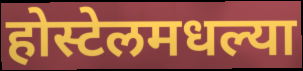
होस्टेलमधल्या